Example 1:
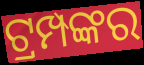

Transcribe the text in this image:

ଟ୍ରମ୍ପଙ୍କର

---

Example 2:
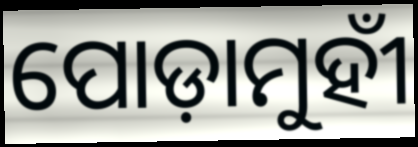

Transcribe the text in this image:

ପୋଡ଼ାମୁହୀଁ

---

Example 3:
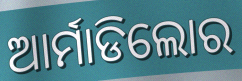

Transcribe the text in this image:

ଆର୍ମାଡିଲୋର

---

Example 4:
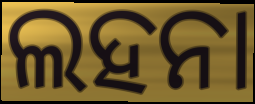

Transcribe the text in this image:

ଲହନା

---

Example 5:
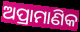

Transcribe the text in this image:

ଅପ୍ରାମାଣିକ